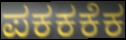
ಪಕಕಕೆಕ